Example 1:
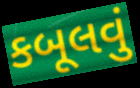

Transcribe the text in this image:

કબૂલવું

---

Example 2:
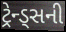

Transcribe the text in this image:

ટ્રેન્ડ્સની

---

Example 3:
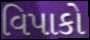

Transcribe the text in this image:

વિપાકો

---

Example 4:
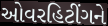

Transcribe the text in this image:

ઓવરહિટીંગને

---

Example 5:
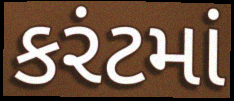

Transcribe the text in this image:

કરંટમાં